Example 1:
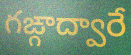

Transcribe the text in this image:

గఙ్గాద్వారే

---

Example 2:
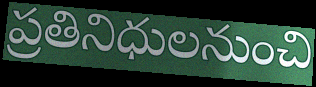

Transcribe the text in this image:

ప్రతినిధులనుంచి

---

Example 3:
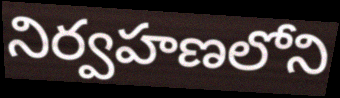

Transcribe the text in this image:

నిర్వహణలోని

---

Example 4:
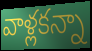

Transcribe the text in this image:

వాళ్లకన్నా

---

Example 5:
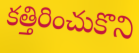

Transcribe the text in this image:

కత్తిరించుకొని